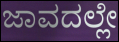
ಜಾವದಲ್ಲೇ